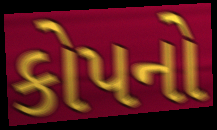
કોપનો